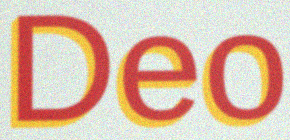
Deo